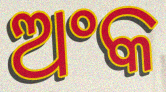
ଅଂକ